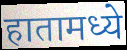
हातामध्ये